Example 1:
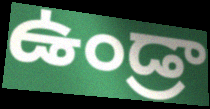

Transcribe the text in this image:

ఉండ్రా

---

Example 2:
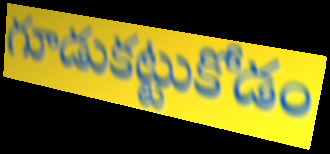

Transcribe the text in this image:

గూడుకట్టుకోడం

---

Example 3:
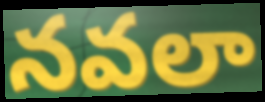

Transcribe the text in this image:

నవలా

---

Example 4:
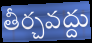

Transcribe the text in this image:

తీర్చవద్దు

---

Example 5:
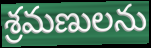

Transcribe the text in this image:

శ్రమణులను